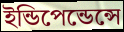
ইন্ডিপেন্ডেন্সে